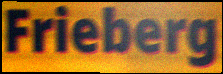
Frieberg